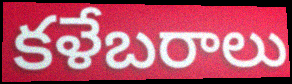
కళేబరాలు